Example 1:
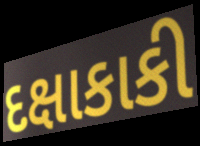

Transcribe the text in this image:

દક્ષાકાકી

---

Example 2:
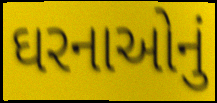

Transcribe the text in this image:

ઘરનાઓનું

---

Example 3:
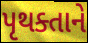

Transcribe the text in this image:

પૃથક્તાને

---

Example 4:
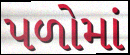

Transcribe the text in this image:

પળોમાં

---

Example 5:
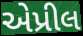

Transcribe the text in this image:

એપ્રીલ